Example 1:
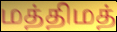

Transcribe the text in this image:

மத்திமத்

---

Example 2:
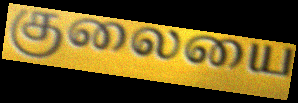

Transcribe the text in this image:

குலையை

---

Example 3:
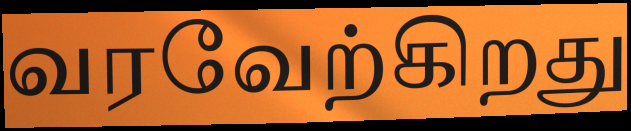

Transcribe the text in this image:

வரவேற்கிறது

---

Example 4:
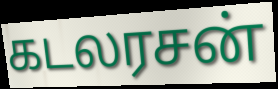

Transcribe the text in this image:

கடலரசன்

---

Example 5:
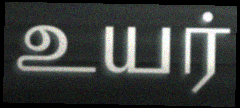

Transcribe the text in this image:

உயர்